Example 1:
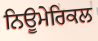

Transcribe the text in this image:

ਨਿਊਮੇਰਿਕਲ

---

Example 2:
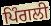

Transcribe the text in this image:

ਪਿੰਗਲੀ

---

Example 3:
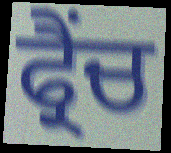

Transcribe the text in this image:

ਫ੍ਰੈਂਚ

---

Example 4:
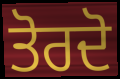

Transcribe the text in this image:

ਤੋਰਦੋ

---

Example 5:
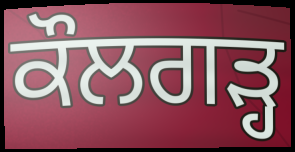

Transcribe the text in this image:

ਕੌਲਗੜ੍ਹ